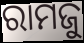
ରାମଜୁ